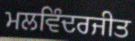
ਮਲਵਿੰਦਰਜੀਤ